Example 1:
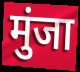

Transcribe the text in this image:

मुंजा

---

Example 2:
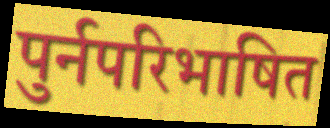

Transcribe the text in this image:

पुर्नपरिभाषित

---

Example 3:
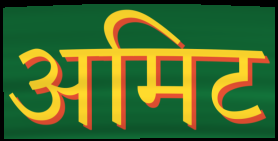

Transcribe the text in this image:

अमिट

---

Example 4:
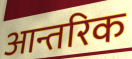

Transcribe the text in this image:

आन्तरिक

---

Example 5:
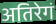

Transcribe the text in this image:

अतिरेगं